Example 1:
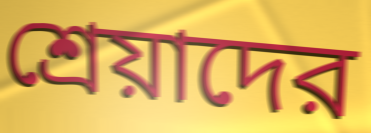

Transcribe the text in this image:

শ্রেয়াদের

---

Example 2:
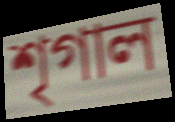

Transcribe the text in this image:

শৃগাল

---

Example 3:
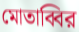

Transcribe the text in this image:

মোতাব্বির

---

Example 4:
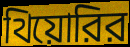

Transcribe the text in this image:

থিয়োরির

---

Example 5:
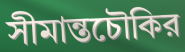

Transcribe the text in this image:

সীমান্তচৌকির